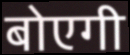
बोएगी